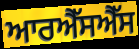
ਆਰਐੱਸਐੱਸ